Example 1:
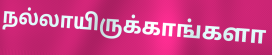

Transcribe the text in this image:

நல்லாயிருக்காங்களா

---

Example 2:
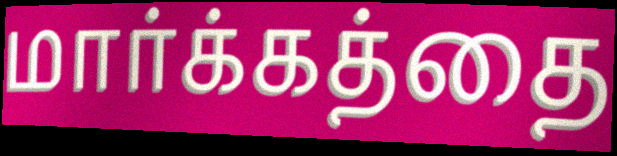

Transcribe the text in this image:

மார்க்கத்தை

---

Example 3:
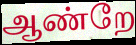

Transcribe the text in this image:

ஆண்றே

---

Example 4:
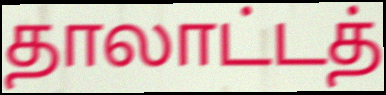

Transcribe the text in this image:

தாலாட்டத்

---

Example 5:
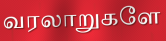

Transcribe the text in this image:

வரலாறுகளே